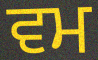
ਵਮ